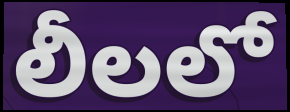
లీలలో